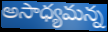
అసాధ్యమన్న